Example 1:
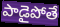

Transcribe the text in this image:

పాడైపోతే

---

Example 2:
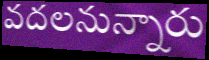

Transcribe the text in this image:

వదలనున్నారు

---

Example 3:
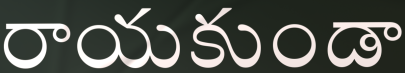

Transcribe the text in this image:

రాయకుండా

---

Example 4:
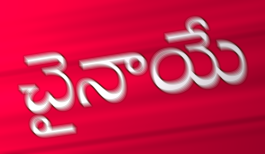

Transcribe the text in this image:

చైనాయే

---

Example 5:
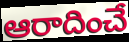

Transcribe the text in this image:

ఆరాదించే